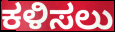
ಕಳಿಸಲು